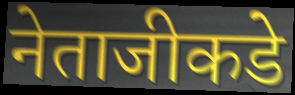
नेताजीकडे